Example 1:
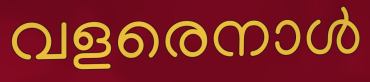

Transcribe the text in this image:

വളരെനാൾ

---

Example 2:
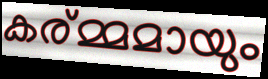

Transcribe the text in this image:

കര്മ്മമായും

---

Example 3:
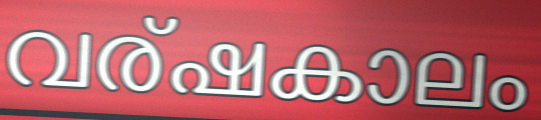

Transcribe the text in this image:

വര്ഷകാലം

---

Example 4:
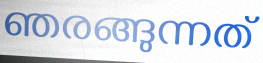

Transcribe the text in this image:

ഞരങ്ങുന്നത്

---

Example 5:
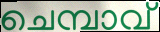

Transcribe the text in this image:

ചെമ്പാവ്